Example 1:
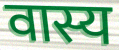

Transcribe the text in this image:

वास्य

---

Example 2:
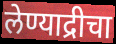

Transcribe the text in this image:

लेण्याद्रीचा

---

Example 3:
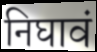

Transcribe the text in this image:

निघावं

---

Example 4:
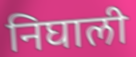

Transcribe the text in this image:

निघाली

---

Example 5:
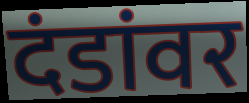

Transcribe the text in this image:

दंडांवर